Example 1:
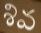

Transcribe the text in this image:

శివ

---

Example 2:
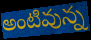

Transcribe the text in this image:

అంటివున్న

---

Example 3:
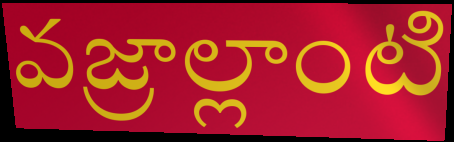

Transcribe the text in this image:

వజ్రాల్లాంటి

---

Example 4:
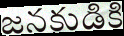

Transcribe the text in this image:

జనకుడికి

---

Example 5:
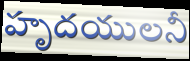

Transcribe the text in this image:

హృదయులనీ